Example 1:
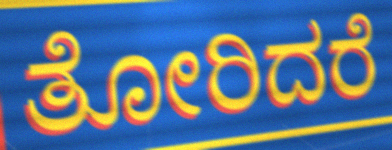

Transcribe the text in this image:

ತೋರಿದರೆ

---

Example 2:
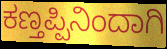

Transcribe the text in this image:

ಕಣ್ತಪ್ಪಿನಿಂದಾಗಿ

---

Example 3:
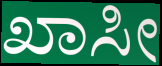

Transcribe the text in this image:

ಖಾಸೀ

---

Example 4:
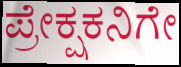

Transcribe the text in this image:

ಪ್ರೇಕ್ಷಕನಿಗೇ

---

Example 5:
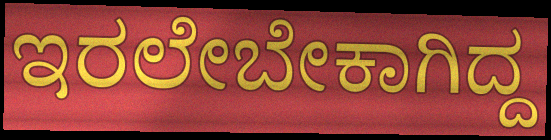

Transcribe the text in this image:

ಇರಲೇಬೇಕಾಗಿದ್ದ